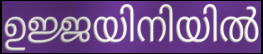
ഉജ്ജയിനിയിൽ